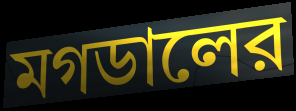
মগডালের